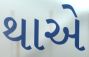
થાએ